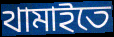
থামাইতে